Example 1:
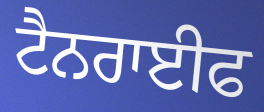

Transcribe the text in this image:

ਟੈਨਰਾਈਫ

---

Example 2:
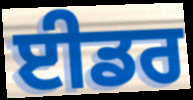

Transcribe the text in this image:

ਈਡਰ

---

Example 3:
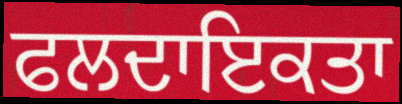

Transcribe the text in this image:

ਫਲਦਾਇਕਤਾ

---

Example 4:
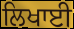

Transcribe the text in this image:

ਲਿਖਾਈ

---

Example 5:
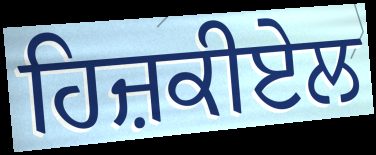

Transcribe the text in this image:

ਹਿਜ਼ਕੀਏਲ